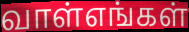
வாள்எங்கள்